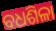
ବଧଶିଳା